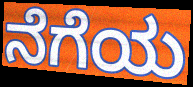
ನೆಗೆಯ